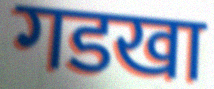
गडखा